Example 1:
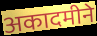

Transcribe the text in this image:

अकादमीने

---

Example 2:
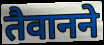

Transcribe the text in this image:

तैवानने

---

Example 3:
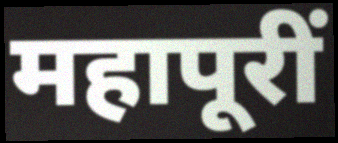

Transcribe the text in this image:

महापूरीं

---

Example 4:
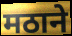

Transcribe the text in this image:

मठाने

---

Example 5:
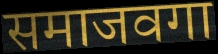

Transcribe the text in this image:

समाजवगा